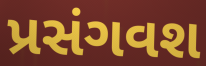
પ્રસંગવશ